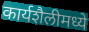
कार्यशैलीमध्ये